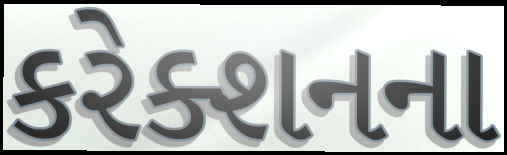
કરેક્શનના